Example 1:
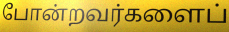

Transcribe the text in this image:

போன்றவர்களைப்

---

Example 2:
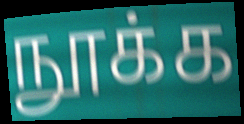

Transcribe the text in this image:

நூக்க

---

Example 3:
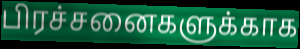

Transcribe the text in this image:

பிரச்சனைகளுக்காக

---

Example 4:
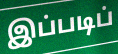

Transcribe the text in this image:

இப்படிப்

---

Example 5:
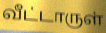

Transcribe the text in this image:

வீட்டாருள்